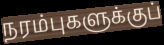
நரம்புகளுக்குப்